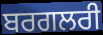
ਬਰਗਲਰੀ